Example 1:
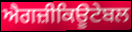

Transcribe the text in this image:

ਐਗਜ਼ੀਕਿਊਟੇਬਲ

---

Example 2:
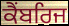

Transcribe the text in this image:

ਕੈਂਬਰਿਜ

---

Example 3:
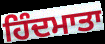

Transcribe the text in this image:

ਹਿੰਦਮਾਤਾ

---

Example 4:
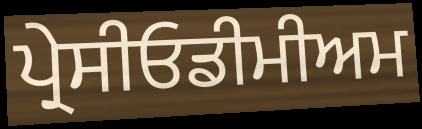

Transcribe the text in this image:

ਪ੍ਰੇਸੀਓਡੀਮੀਅਮ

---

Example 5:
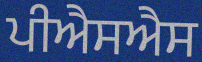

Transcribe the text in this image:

ਪੀਐਸਐਸ